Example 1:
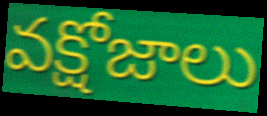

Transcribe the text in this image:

వక్షోజాలు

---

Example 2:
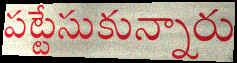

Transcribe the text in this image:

పట్టేసుకున్నారు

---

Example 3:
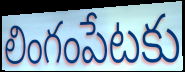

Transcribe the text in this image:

లింగంపేటకు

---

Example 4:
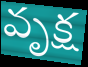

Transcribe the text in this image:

వృక్ష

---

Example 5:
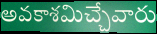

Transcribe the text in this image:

అవకాశమిచ్చేవారు